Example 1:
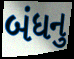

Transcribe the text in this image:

બંધનુ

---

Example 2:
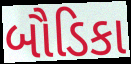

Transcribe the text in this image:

બૌડિકા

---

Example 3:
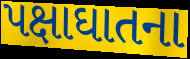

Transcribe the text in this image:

પક્ષાઘાતના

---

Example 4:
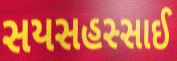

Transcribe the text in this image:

સયસહસ્સાઈ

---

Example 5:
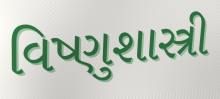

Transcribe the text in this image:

વિષ્ણુશાસ્ત્રી